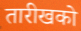
तारीखको